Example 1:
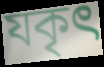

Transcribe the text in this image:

যকৃৎ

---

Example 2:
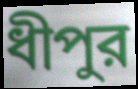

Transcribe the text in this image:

ধীপুর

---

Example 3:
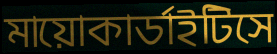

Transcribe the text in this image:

মায়োকার্ডাইটিসে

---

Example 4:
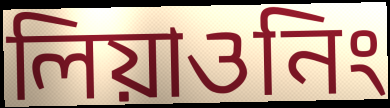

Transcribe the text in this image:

লিয়াওনিং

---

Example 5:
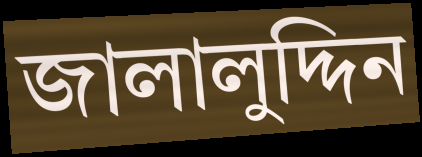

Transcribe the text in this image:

জালালুদ্দিন